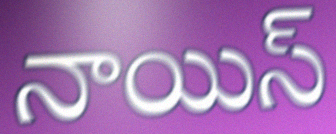
నాయిస్